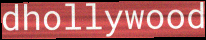
dhollywood